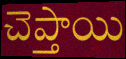
చెప్తాయి